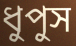
ধুপুস